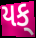
યક્